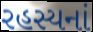
રહસ્યનાં